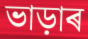
ভাড়াৰ